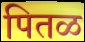
पितळ